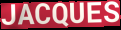
JACQUES